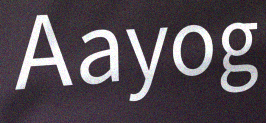
Aayog